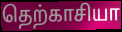
தெற்காசியா